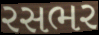
રસભર